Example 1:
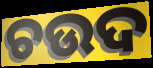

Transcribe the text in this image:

ଚଉଦ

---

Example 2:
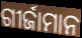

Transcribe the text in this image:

ଗୀର୍ଜାମାନ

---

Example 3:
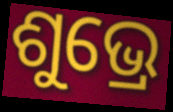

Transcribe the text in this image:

ଶୁଭ୍ରେ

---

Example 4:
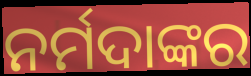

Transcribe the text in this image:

ନର୍ମଦାଙ୍କର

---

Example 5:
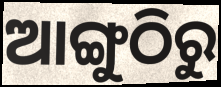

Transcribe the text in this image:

ଆଙ୍ଗୁଠିରୁ